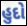
હુદો